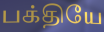
பக்தியே